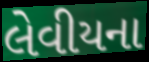
લેવીયના